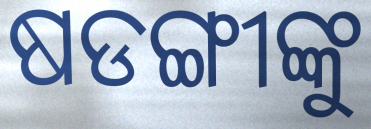
ଷଡଙ୍ଗୀଙ୍କୁ